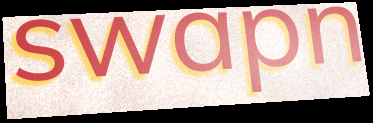
swapn